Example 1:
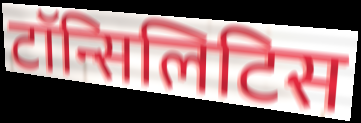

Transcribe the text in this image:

टॉन्सिलिटिस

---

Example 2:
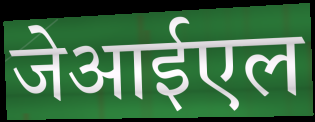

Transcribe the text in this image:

जेआईएल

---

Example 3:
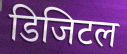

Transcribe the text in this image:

डिजिटल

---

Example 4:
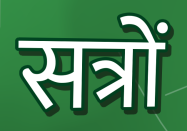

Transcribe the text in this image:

सत्रों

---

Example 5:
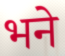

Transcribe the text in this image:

भने